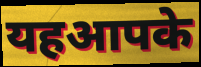
यहआपके